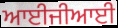
ਆਈਜੀਆਈ